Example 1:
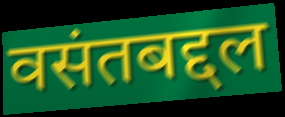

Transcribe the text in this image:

वसंतबद्दल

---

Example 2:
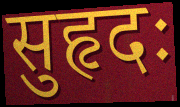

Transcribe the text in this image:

सुहृदः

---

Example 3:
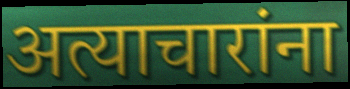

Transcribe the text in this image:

अत्याचारांना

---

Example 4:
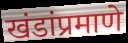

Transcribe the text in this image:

खंडांप्रमाणे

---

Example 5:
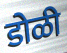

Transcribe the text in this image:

डोळी